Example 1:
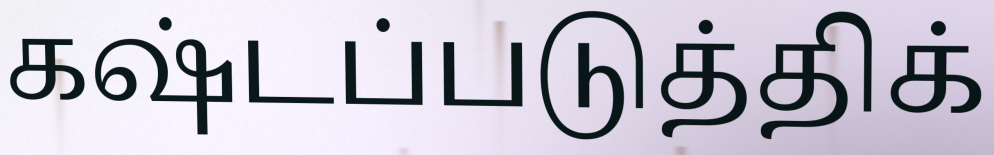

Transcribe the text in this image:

கஷ்டப்படுத்திக்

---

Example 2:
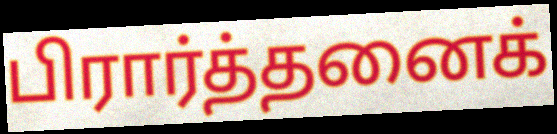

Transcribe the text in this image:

பிரார்த்தனைக்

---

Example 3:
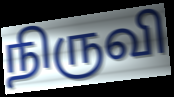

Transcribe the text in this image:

நிருவி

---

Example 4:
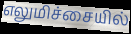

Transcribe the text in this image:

எலுமிச்சையில்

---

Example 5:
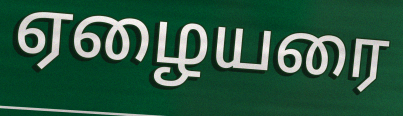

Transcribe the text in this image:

ஏழையரை